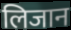
लिजान